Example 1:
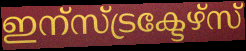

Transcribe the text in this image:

ഇന്സ്ട്രക്ടേഴ്സ്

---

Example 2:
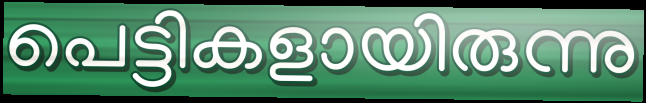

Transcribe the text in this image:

പെട്ടികളായിരുന്നു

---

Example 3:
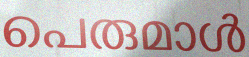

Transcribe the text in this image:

പെരുമാൾ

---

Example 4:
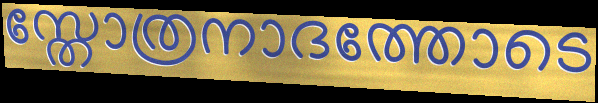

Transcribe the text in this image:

സ്തോത്രനാദത്തോടെ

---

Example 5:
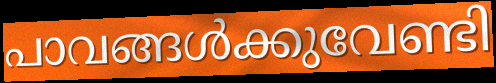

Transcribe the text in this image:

പാവങ്ങൾക്കുവേണ്ടി